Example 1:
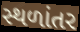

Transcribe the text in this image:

સ્થળાંતર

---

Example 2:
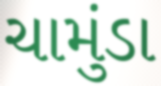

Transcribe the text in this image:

ચામુંડા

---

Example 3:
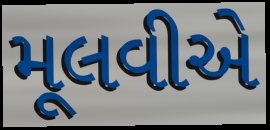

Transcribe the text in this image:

મૂલવીએ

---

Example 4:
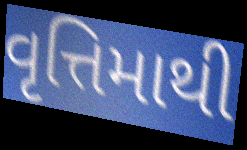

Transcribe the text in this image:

વૃત્તિમાથી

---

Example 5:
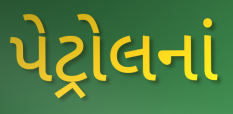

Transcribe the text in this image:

પેટ્રોલનાં